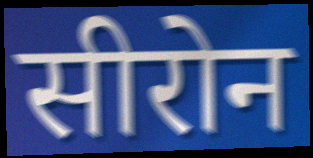
सीरोन